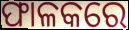
ଫାଳକରେ